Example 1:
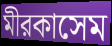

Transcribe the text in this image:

মীরকাসেম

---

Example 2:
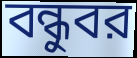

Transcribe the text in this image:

বন্ধুবর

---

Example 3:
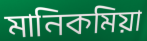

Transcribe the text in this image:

মানিকমিয়া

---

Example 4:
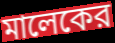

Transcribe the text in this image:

মালেকের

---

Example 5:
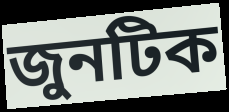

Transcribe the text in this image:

জুনটিক